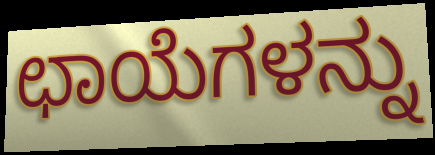
ಛಾಯೆಗಳನ್ನು